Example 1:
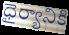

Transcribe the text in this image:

ధైర్యానికి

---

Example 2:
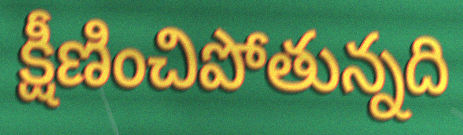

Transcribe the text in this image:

క్షీణించిపోతున్నది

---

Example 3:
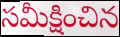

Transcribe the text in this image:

సమీక్షించిన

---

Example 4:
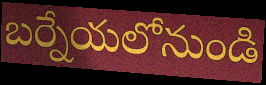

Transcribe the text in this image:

బర్నేయలోనుండి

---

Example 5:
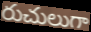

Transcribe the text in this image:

రుచులుగా